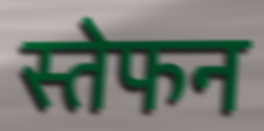
स्तेफन